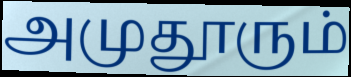
அமுதூரும்